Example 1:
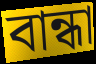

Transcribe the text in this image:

বান্ধা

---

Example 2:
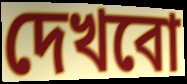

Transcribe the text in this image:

দেখবো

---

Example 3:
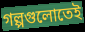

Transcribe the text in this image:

গল্পগুলোতেই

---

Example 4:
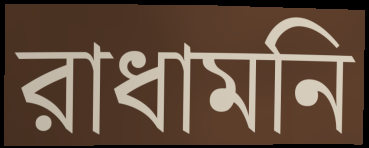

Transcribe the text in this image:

রাধামনি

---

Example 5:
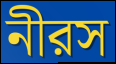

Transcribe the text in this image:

নীরস